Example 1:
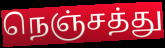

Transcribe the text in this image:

நெஞ்சத்து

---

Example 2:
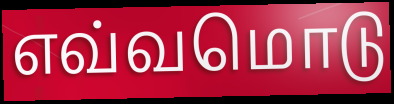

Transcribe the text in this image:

எவ்வமொடு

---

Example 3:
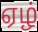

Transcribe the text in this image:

ஏழ்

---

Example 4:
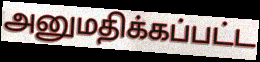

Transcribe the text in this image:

அனுமதிக்கப்பட்ட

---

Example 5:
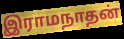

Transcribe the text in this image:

இராமநாதன்